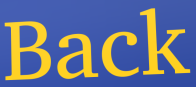
Back